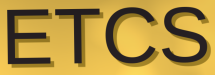
ETCS